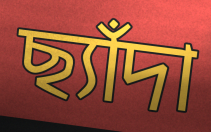
ছ্যাঁদা